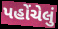
પહોંચેલું